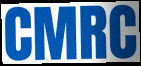
CMRC